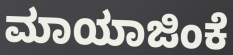
ಮಾಯಾಜಿಂಕೆ